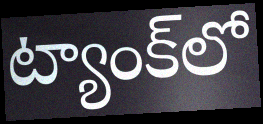
ట్యాంక్‌లో